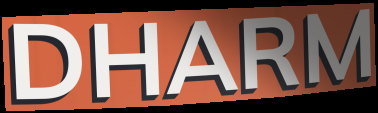
DHARM